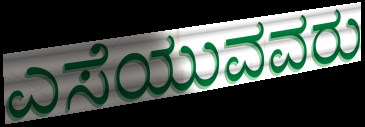
ಎಸೆಯುವವರು